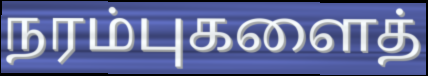
நரம்புகளைத்